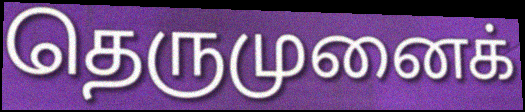
தெருமுனைக்